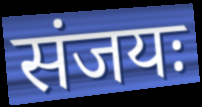
संजयः